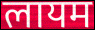
लायम